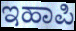
ಇಹಾಪಿ